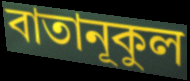
বাতানূকুল